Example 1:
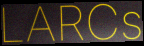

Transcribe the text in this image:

LARCs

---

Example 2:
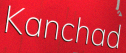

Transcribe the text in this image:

Kanchad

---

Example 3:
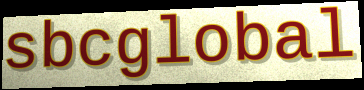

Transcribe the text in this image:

sbcglobal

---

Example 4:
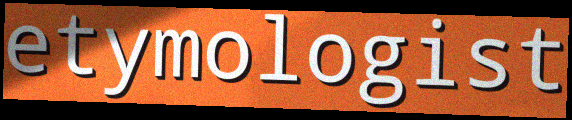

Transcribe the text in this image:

etymologist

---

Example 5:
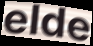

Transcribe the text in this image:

elde